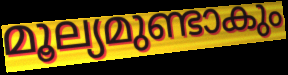
മൂല്യമുണ്ടാകും